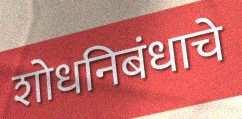
शोधनिबंधाचे